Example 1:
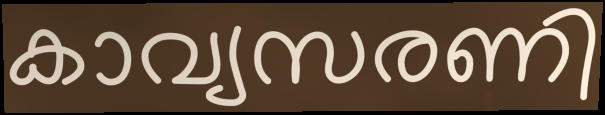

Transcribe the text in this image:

കാവ്യസരണി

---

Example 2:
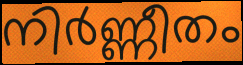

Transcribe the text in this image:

നിർണ്ണീതം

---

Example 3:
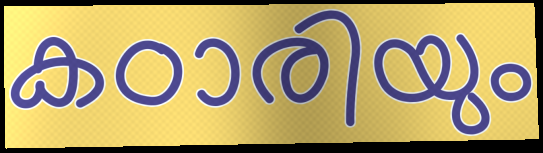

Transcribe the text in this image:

കഠാരിയും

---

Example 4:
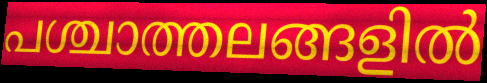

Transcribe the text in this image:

പശ്ചാത്തലങ്ങളിൽ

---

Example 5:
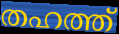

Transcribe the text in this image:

തഹത്ത്